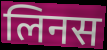
लिनस